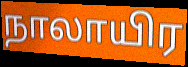
நாலாயிர